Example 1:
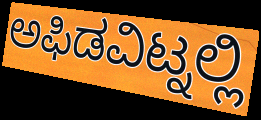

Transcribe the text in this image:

ಅಫಿಡವಿಟ್ನಲ್ಲಿ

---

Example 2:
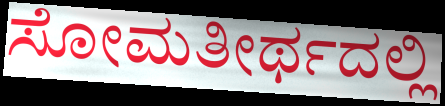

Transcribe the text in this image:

ಸೋಮತೀರ್ಥದಲ್ಲಿ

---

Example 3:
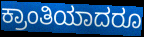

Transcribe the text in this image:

ಕ್ರಾಂತಿಯಾದರೂ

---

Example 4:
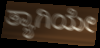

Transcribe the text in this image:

ತ್ಯಾಗಿಯೇ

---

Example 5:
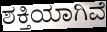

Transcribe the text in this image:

ಶಕ್ತಿಯಾಗಿವೆ